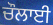
ਚੌਲਾਈ